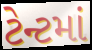
ટેન્ટમાં